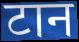
टान